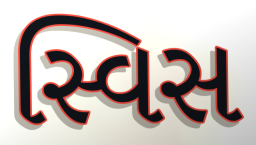
સ્વિસ